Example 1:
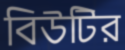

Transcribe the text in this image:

বিউটির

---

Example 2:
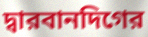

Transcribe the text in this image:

দ্বারবানদিগের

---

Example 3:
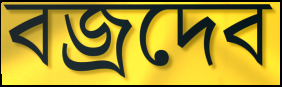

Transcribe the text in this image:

বজ্রদেব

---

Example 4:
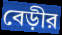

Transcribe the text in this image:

বেড়ীর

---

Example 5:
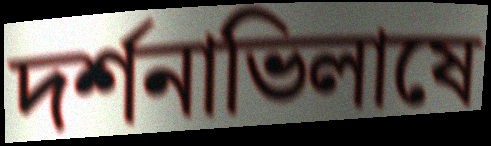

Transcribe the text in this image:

দর্শনাভিলাষে